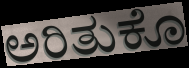
ಅರಿತುಕೊ